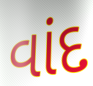
વાંદ